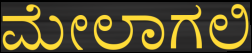
ಮೇಲಾಗಲಿ